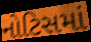
નોટિસમાં